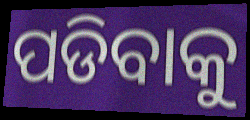
ପଡିବାକୁ